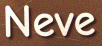
Neve